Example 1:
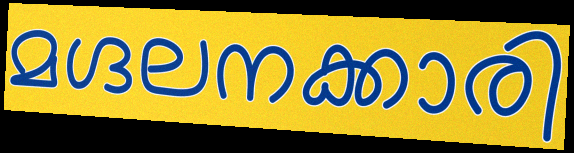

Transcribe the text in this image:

മഗ്ദലനക്കാരി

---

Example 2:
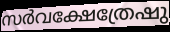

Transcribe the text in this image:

സർവക്ഷേത്രേഷു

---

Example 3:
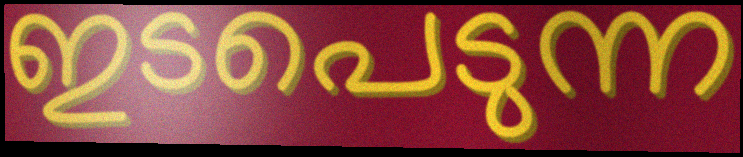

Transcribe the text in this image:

ഇടപെടുന്ന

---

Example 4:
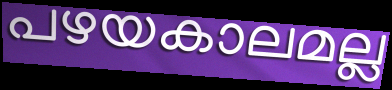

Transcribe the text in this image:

പഴയകാലമല്ല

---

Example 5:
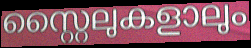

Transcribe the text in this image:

സ്റ്റൈലുകളാലും